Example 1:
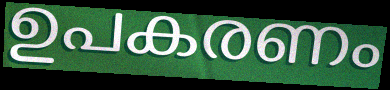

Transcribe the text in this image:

ഉപകരണം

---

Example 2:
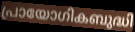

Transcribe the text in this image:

പ്രായോഗികബുദ്ധി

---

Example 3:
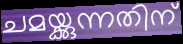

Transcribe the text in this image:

ചമയ്ക്കുന്നതിന്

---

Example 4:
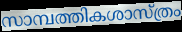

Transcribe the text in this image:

സാമ്പത്തികശാസ്ത്രം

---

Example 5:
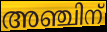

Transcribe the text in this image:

അഞ്ചിന്